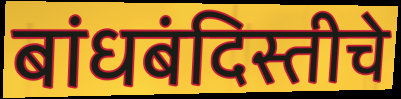
बांधबंदिस्तीचे